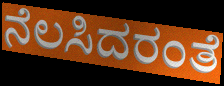
ನೆಲಸಿದರಂತೆ